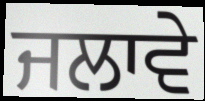
ਜਲਾਵੇ